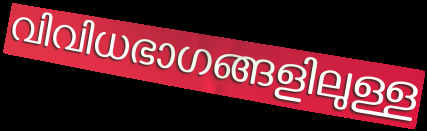
വിവിധഭാഗങ്ങളിലുള്ള